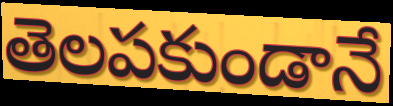
తెలపకుండానే